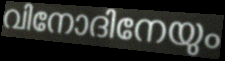
വിനോദിനേയും